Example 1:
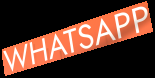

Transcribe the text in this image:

WHATSAPP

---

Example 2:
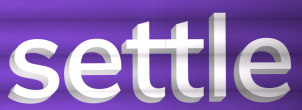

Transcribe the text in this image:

settle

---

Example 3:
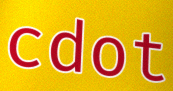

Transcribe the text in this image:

cdot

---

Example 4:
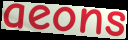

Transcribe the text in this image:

aeons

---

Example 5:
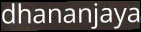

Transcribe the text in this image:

dhananjaya